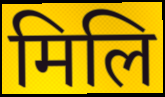
मिलि